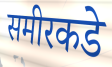
समीरकडे